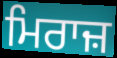
ਮਿਰਾਜ਼